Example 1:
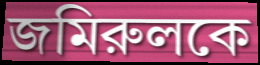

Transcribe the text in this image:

জমিরুলকে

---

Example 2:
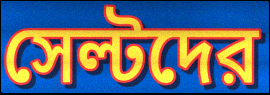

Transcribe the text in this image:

সেল্টদের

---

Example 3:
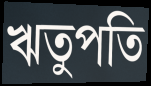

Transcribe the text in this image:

ঋতুপতি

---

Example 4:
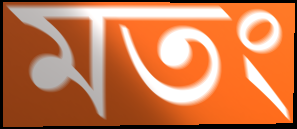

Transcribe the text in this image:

মতং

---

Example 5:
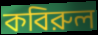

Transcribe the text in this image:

কবিরুল